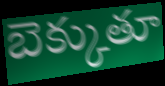
బెక్కుతూ